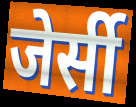
जेर्सी